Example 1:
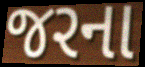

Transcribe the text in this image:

જરના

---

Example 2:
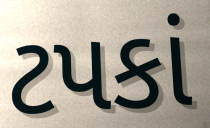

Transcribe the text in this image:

ટપકાં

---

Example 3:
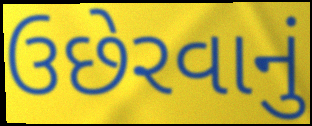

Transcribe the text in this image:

ઉછેરવાનું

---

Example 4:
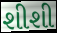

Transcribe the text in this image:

શીશી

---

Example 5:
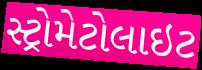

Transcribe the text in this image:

સ્ટ્રોમેટોલાઇટ